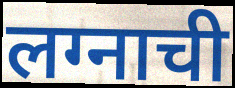
लग्नाची